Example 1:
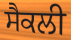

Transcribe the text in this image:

ਸੈਕਲੀ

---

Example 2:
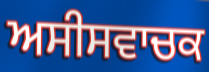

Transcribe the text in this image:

ਅਸੀਸਵਾਚਕ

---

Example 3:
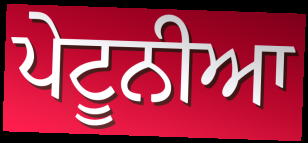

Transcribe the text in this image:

ਪੇਟੂਨੀਆ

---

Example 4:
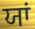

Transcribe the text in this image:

ਯਾਂ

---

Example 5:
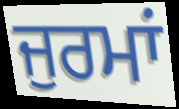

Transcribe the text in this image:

ਜੁਰਮਾਂ